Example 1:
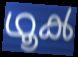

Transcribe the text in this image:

ഥൂൿ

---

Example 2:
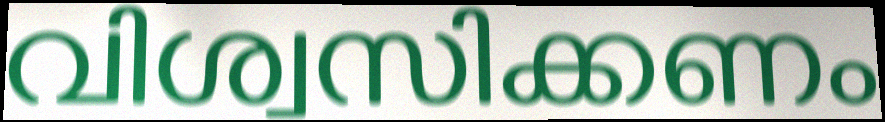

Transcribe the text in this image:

വിശ്വസിക്കണം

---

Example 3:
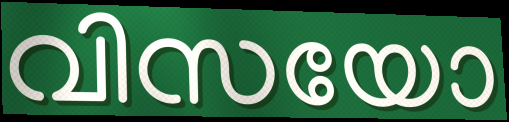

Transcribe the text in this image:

വിസയോ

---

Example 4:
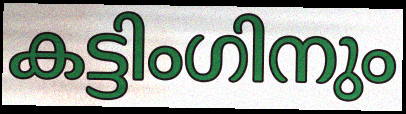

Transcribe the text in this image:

കട്ടിംഗിനും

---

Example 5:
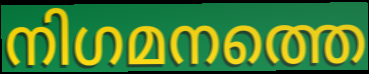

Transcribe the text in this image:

നിഗമനത്തെ